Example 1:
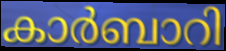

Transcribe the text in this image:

കാർബാറി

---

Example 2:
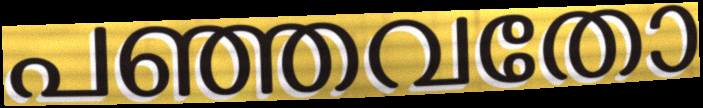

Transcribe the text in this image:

പഞ്ഞവതോ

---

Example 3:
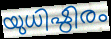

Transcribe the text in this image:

യുധിഷ്ഠിരം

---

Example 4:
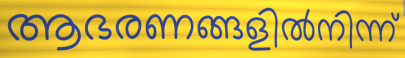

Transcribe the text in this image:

ആഭരണങ്ങളിൽനിന്ന്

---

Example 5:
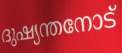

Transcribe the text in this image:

ദുഷ്യന്തനോട്